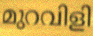
മുറവിളി